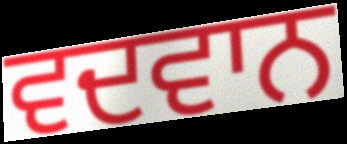
ਵਦਵਾਨ